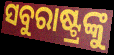
ସବୁରାଷ୍ଟ୍ରଙ୍କୁ